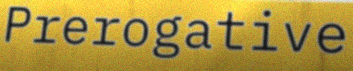
Prerogative